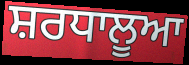
ਸ਼ਰਧਾਲੂਆ